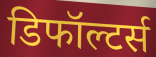
डिफॉल्टर्स